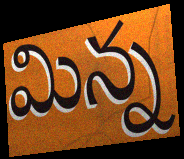
మిన్న